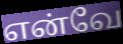
என்வே